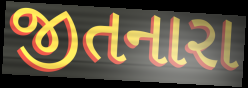
જીતનારા